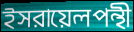
ইসরায়েলপন্থী